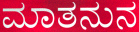
ಮಾತನುನ